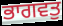
ਭਾਗਵਤੁ